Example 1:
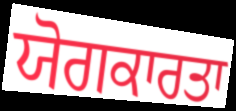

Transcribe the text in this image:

ਯੋਗਕਾਰਤਾ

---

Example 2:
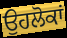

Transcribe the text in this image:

ਉਹਲੋਕਾਂ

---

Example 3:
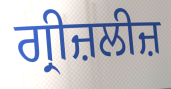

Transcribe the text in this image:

ਗ੍ਰੀਜ਼ਲੀਜ਼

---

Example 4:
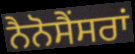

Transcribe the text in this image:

ਨੈਨੋਸੈਂਸਰਾਂ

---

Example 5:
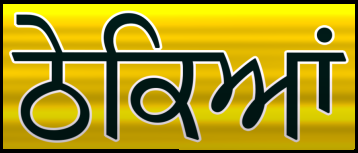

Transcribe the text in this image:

ਠੇਕਿਆਂ